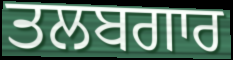
ਤਲਬਗਾਰ